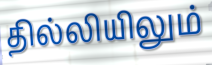
தில்லியிலும்